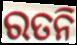
ରତନି